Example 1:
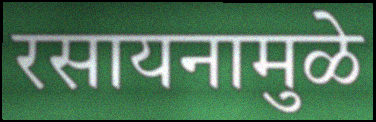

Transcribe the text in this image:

रसायनामुळे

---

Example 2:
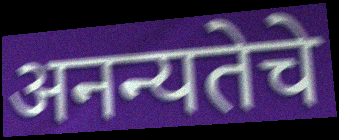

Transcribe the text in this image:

अनन्यतेचे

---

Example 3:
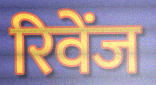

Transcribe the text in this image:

रिवेंज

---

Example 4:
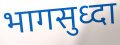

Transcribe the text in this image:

भागसुध्दा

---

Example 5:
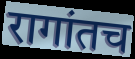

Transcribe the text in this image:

रागांतच